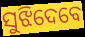
ସୁଝିଦେବେ